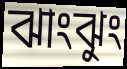
ঝাংঝুং